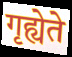
गृह्येते